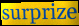
surprize